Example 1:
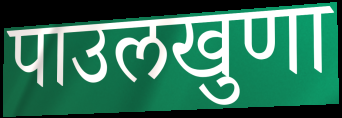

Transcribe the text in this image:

पाउलखुणा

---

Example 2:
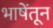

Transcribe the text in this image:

भाषेंतून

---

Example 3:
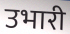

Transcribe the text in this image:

उभारी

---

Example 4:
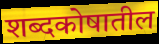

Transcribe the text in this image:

शब्दकोषातील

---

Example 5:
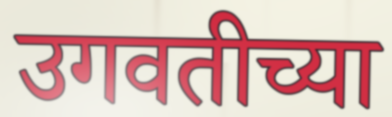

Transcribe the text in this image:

उगवतीच्या